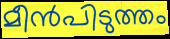
മീൻപിടുത്തം